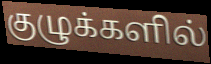
குழுக்களில்